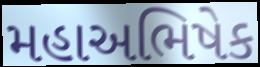
મહાઅભિષેક